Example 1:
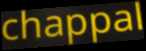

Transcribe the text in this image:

chappal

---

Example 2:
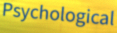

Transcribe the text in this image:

Psychological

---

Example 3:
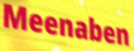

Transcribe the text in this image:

Meenaben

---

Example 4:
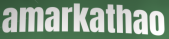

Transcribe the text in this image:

amarkathao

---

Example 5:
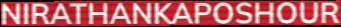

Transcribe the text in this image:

NIRATHANKAPOSHOUR